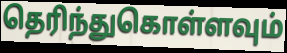
தெரிந்துகொள்ளவும்